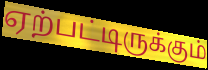
ஏற்பட்டிருக்கும்